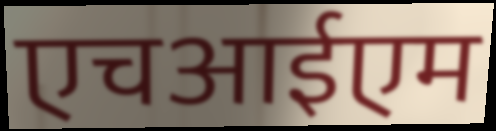
एचआईएम